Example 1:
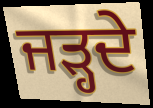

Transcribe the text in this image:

ਜੜ੍ਹਦੇ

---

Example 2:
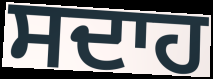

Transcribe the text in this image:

ਸਦਾਹ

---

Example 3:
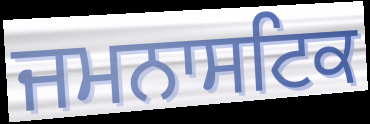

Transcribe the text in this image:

ਜਮਨਾਸਟਿਕ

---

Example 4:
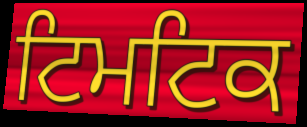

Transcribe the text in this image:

ਟਿਮਟਿਕ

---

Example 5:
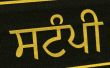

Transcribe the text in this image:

ਸਟੰਪੀ